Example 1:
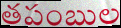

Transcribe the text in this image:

తపంబుల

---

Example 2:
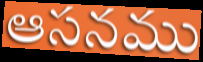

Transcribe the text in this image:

ఆసనము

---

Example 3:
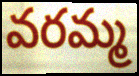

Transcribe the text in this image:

వరమ్మ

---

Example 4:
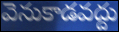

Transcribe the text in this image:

వెనుకాడవద్దు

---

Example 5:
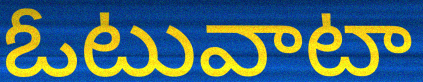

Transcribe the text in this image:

ఓటువాటా